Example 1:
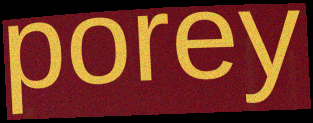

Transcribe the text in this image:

porey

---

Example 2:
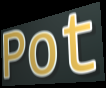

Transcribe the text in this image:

Pot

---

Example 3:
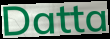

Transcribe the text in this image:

Datta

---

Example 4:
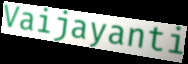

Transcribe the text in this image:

Vaijayanti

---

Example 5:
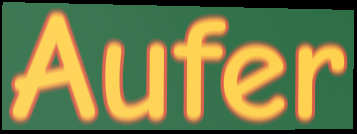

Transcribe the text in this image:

Aufer